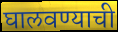
घालवण्याची